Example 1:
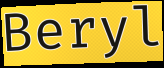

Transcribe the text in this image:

Beryl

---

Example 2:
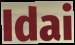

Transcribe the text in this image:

Idai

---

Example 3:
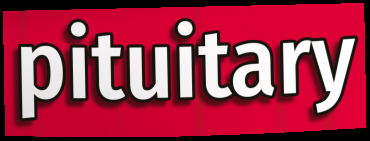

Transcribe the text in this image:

pituitary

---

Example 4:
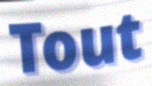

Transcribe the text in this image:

Tout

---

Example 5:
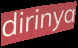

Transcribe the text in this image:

dirinya